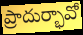
ప్రాదుర్భావో